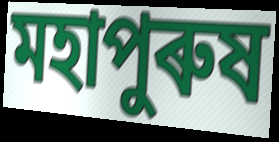
মহাপুৰুষ